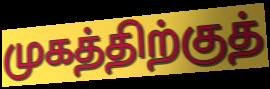
முகத்திற்குத்